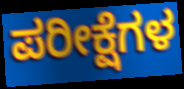
ಪರೀಕ್ಷೆಗಳ